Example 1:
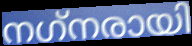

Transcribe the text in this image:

നഗ്‌നരായി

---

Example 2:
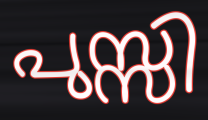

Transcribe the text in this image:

പുസ്സി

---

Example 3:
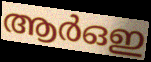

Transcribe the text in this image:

ആർഒഇ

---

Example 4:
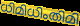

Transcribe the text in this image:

ധിമിധിംതിമി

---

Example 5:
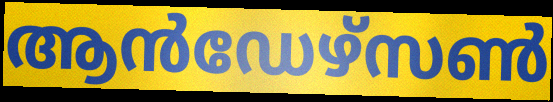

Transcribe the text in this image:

ആൻഡേഴ്സൺ